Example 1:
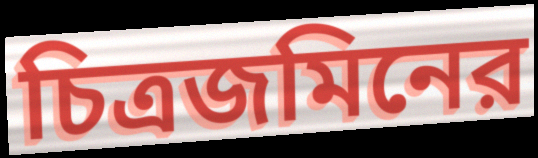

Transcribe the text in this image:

চিত্রজমিনের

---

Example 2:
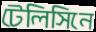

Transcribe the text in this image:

টেলিসিনে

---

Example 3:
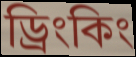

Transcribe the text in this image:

ড্রিংকিং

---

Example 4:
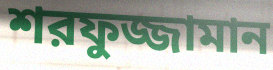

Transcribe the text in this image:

শরফুজ্জামান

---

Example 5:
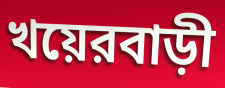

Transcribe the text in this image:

খয়েরবাড়ী